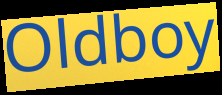
Oldboy